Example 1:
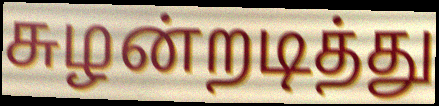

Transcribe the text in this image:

சுழன்றடித்து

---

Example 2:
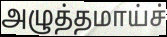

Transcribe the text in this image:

அழுத்தமாய்ச்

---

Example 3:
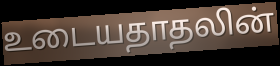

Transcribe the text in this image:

உடையதாதலின்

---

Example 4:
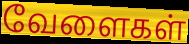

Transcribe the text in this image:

வேளைகள்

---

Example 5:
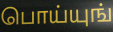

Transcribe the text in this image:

பொய்யுங்